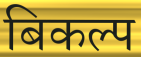
बिकल्प